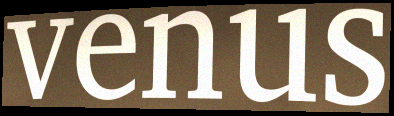
venus